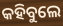
କହିବୁଲେ